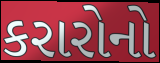
કરારોનો